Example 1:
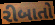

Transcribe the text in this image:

રીબાતો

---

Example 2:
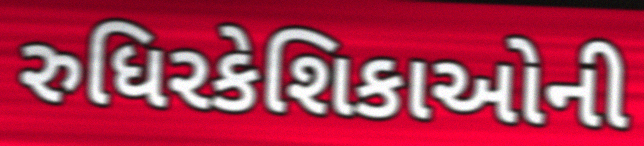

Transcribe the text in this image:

રુધિરકેશિકાઓની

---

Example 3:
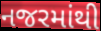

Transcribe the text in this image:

નજરમાંથી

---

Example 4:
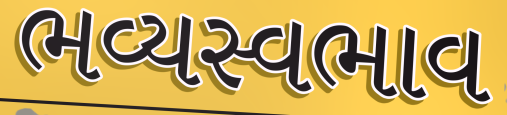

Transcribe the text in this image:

ભવ્યસ્વભાવ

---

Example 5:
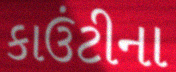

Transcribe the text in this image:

કાઉંટીના